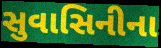
સુવાસિનીના